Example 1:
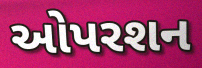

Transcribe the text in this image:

ઓપરશન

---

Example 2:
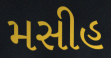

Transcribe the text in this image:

મસીહ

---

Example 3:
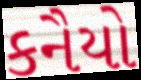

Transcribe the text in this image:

કનૈયો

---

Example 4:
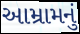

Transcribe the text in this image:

આમ્રામનું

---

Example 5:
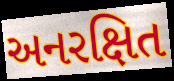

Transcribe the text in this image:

અનરક્ષિત